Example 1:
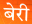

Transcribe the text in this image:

बेरी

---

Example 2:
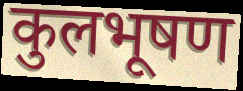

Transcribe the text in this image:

कुलभूषण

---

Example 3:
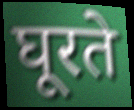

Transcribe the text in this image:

घूरते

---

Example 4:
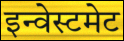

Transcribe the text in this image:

इन्वेस्टमेट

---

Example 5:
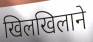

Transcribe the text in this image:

खिलखिलाने